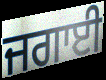
ਜਗਾਈ